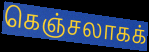
கெஞ்சலாகக்